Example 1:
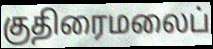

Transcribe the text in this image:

குதிரைமலைப்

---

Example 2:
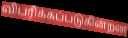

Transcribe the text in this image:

விபரிக்கப்படுகின்றன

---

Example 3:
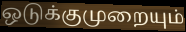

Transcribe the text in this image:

ஒடுக்குமுறையும்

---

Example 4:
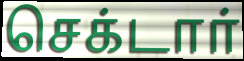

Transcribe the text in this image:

செக்டார்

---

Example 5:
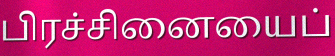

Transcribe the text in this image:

பிரச்சினையைப்